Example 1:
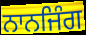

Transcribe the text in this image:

ਨਾਨਜਿੰਗ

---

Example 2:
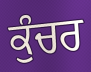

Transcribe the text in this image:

ਕੁੰਚਰ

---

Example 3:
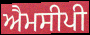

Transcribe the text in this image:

ਐਮਸੀਪੀ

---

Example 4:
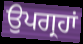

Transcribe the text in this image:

ਉਪਗ੍ਰਹਾਂ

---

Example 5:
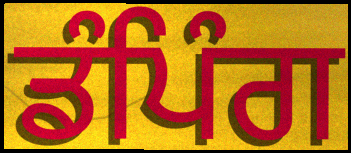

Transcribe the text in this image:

ਡੰਪਿੰਗ